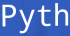
Pyth